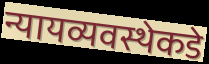
न्यायव्यवस्थेकडे